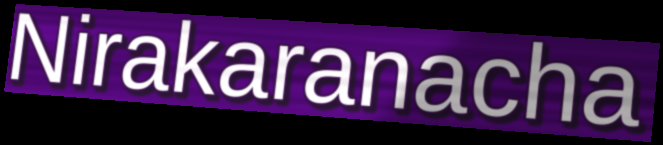
Nirakaranacha